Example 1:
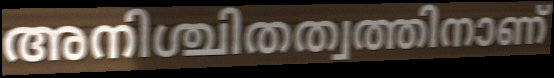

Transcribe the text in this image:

അനിശ്ചിതത്വത്തിനാണ്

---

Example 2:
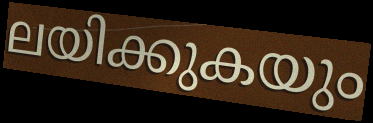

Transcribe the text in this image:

ലയിക്കുകയും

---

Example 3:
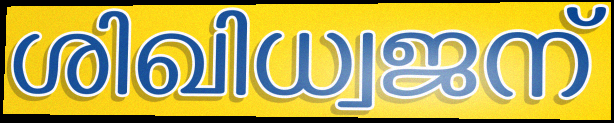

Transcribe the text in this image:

ശിഖിധ്വജന്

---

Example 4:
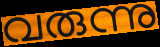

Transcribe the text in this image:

വരുന്നു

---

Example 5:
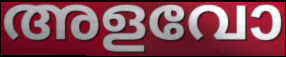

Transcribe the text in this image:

അളവോ